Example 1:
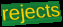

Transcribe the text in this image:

rejects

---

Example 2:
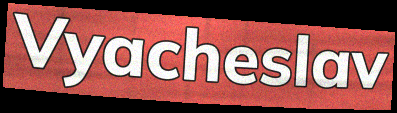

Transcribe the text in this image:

Vyacheslav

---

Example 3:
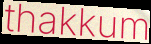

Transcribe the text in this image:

thakkum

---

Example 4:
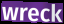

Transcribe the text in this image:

wreck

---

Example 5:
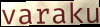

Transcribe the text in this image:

varaku